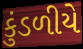
કુંડળીયે